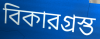
বিকারগ্রস্ত